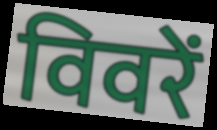
विवरें